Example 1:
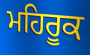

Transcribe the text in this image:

ਮਹਿਰੂਕ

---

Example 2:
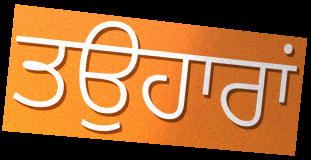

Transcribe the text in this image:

ਤਉਹਾਰਾਂ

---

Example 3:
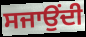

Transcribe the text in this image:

ਸਜਾਉਂਦੀ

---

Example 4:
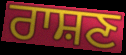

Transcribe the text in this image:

ਰਾਸ਼ਣ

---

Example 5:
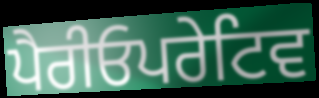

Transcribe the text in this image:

ਪੈਰੀਓਪਰੇਟਿਵ